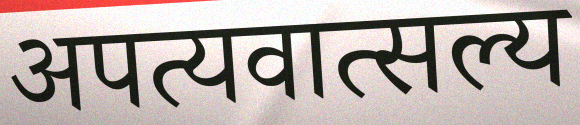
अपत्यवात्सल्य